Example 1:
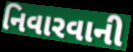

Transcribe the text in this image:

નિવારવાની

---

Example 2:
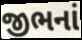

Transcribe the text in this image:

જીભનાં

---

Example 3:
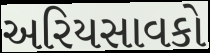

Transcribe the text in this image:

અરિયસાવકો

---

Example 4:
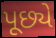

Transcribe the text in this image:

પૂછ્યે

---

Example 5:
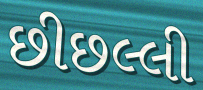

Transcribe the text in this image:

છીછલ્લી